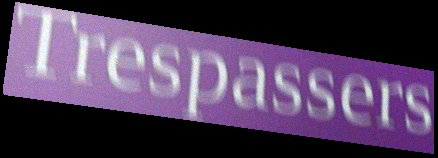
Trespassers